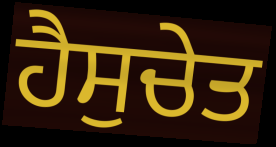
ਹੈਸੁਚੇਤ